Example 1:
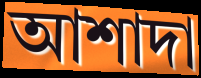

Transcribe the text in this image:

আশাদা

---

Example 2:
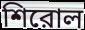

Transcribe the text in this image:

শিরোল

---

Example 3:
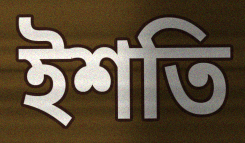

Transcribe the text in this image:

ইশতি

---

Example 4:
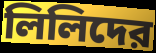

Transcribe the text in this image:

লিলিদের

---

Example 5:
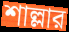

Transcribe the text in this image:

শাল্লার